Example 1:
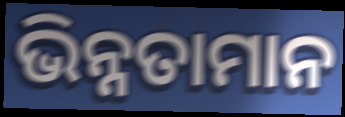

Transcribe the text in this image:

ଭିନ୍ନତାମାନ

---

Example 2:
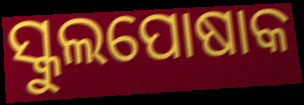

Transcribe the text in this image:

ସ୍କୁଲପୋଷାକ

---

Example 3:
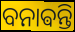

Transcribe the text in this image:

ବନାଵନ୍ତି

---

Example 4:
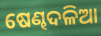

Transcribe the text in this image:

ଷେଣ୍ଢଦଳିଆ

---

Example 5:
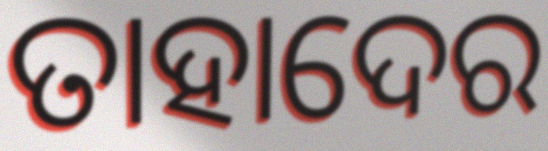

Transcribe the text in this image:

ତାହାଦେର